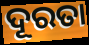
ଦୂରତା